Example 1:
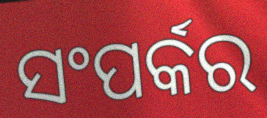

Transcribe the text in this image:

ସଂପର୍କର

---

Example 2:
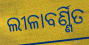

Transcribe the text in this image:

ଲୀଳାବର୍ଣ୍ଣିତ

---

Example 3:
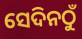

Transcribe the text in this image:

ସେଦିନଠୁଁ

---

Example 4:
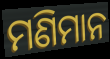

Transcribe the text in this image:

ମଣିମାନ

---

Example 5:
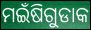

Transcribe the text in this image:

ମଇଁଷିଗୁଡାକ